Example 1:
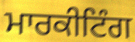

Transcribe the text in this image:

ਮਾਰਕੀਟਿੰਗ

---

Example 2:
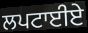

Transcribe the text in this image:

ਲਪਟਾਈਏ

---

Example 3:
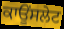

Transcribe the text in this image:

ਕਾਊਂਸਲੇਟ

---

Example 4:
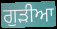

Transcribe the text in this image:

ਗੁੜੀਆ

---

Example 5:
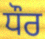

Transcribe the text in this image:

ਧੌਰ